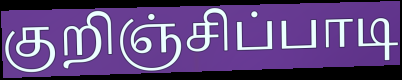
குறிஞ்சிப்பாடி